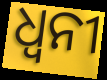
ଧ୍ବନୀ